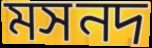
মসনদ